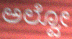
ಅಲ್ವೋ